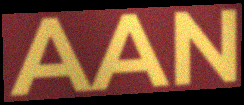
AAN